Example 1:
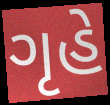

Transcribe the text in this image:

ગૃહે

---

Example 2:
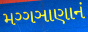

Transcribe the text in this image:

મગ્ગઞાણાનં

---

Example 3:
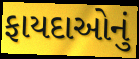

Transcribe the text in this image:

ફાયદાઓનું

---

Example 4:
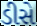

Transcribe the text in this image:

ડીસે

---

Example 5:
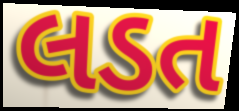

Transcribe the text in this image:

લડત